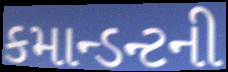
કમાન્ડન્ટની